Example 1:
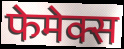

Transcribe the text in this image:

फेमेक्स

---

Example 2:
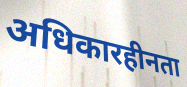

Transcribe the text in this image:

अधिकारहीनता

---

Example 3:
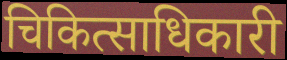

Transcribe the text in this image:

चिकित्साधिकारी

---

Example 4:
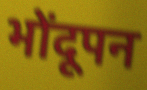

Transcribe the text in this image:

भोंदूपन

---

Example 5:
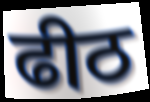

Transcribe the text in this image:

ढीठ